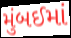
મુંબઈમાં